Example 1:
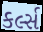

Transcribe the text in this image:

કર્લ્સ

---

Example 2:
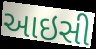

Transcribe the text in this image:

આઇસી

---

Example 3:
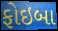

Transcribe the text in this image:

ફોઇબા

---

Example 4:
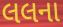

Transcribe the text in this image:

લલના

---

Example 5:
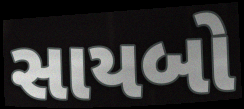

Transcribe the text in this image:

સાયબો